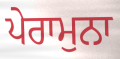
ਪੇਰਾਮੁਨਾ